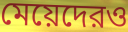
মেয়েদেরও